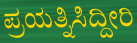
ಪ್ರಯತ್ನಿಸಿದ್ದೀರಿ